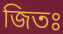
জিতঃ